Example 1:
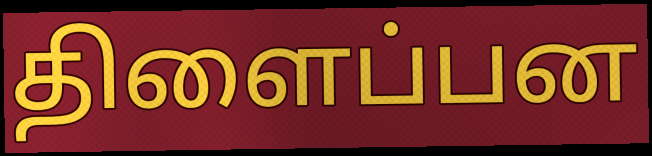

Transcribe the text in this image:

திளைப்பன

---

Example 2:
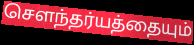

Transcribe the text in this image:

சௌந்தர்யத்தையும்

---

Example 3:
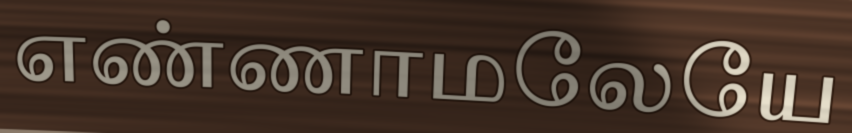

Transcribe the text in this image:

எண்ணாமலேயே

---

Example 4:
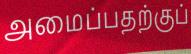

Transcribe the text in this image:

அமைப்பதற்குப்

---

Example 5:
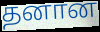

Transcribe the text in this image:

தனான